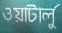
ওয়াটার্লু